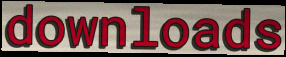
downloads